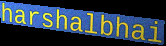
harshalbhai